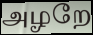
அழறே